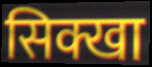
सिक्खा